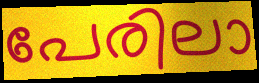
പേരിലാ